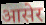
आसेर